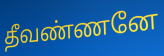
தீவண்ணனே